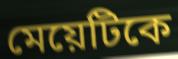
মেয়েটিকে